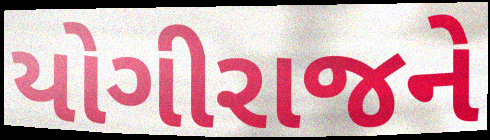
યોગીરાજને